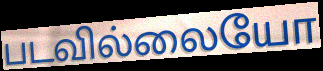
படவில்லையோ